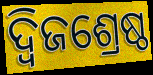
ଦ୍ୱିଜଶ୍ରେଷ୍ଠ